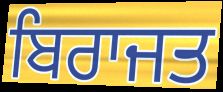
ਬਿਰਾਜਤ